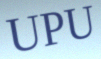
UPU